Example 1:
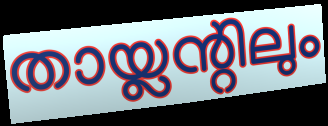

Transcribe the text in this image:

തായ്ലന്റിലും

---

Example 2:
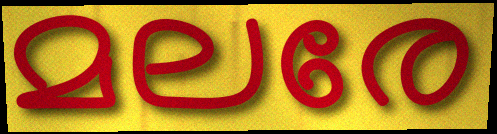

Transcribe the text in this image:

മലരേ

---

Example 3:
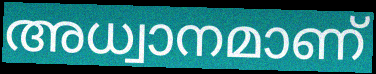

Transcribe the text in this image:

അധ്വാനമാണ്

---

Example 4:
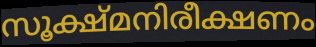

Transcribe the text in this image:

സൂക്ഷ്മനിരീക്ഷണം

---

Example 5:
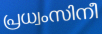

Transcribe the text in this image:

പ്രധ്വംസിനീ